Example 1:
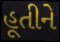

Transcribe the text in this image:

હૂતીને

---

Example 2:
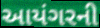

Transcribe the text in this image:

આયંગરની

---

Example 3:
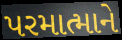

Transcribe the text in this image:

પરમાત્માને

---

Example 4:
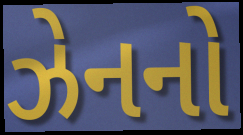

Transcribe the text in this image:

ઝેનનો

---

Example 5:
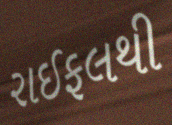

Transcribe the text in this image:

રાઈફલથી